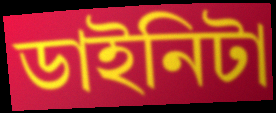
ডাইনিটা